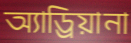
অ্যাড্রিয়ানা